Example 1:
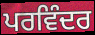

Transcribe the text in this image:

ਪਰਵਿੰਦਰ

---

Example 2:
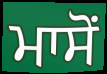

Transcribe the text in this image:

ਮਾਸੋਂ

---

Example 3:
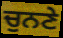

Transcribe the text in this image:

ਚੁਨਣੇ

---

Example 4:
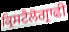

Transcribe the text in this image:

ਕ੍ਰਿਸਟੈਲੋਗ੍ਰਾਫੀ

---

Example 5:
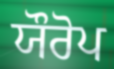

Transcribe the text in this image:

ਯੌਰੋਪ